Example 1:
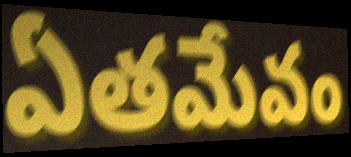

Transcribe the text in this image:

ఏతమేవం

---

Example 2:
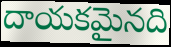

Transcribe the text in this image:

దాయకమైనది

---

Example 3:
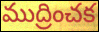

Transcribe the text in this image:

ముద్రించక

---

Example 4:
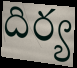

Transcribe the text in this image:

దిర్య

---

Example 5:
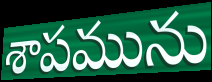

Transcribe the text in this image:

శాపమును